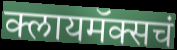
क्लायमॅक्सचं